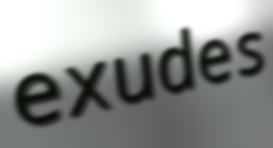
exudes